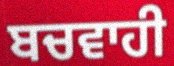
ਬਚਵਾਹੀ